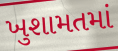
ખુશામતમાં